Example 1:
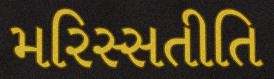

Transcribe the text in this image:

મરિસ્સતીતિ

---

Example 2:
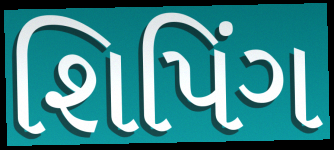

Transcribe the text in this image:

શિપિંગ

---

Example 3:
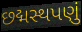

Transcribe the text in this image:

છદ્મસ્થપણું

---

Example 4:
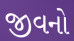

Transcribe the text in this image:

જીવનો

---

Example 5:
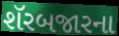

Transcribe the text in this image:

શૅરબજારના